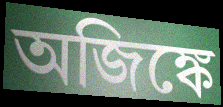
অজিঙ্কে